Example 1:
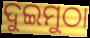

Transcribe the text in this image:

ଦୁଇମୁଠା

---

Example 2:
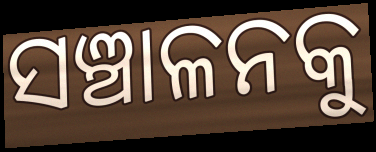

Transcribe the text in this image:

ସଞ୍ଚାଳନକୁ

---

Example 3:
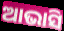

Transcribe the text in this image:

ଆଭାସି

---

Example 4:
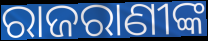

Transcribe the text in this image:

ରାଜରାଣୀଙ୍କ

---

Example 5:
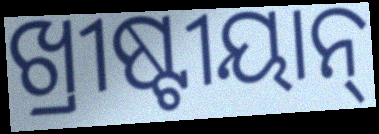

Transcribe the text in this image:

ଖ୍ରୀଷ୍ଟୀୟାନ୍